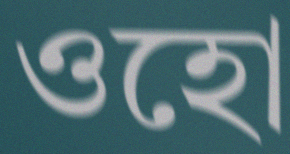
ওহো